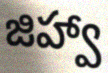
జిహ్వా